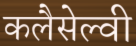
कलैसेल्वी